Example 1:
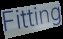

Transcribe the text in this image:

Fitting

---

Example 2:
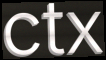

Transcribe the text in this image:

ctx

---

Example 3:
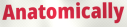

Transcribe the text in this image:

Anatomically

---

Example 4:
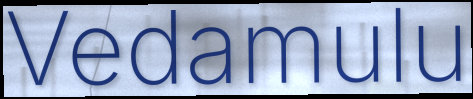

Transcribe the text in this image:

Vedamulu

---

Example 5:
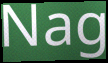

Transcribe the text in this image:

Nag